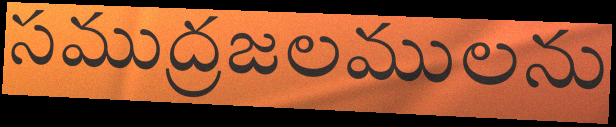
సముద్రజలములను